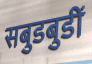
सबुडबुडीं